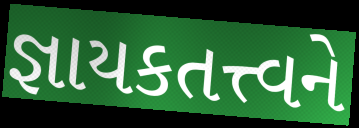
જ્ઞાયકતત્ત્વને